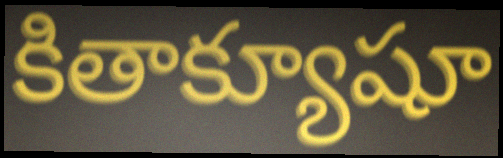
కితాక్యూషూ